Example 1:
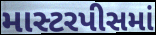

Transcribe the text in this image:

માસ્ટરપીસમાં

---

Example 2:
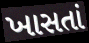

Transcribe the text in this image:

ખાસતાં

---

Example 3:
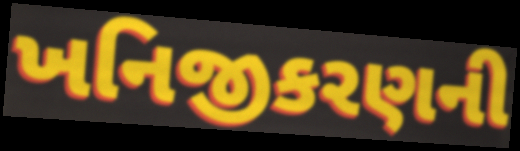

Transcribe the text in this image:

ખનિજીકરણની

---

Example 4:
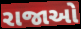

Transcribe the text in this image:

રાજાઓ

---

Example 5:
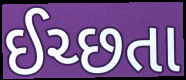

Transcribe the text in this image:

ઈચ્છતા